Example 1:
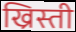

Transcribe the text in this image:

ख्रिस्ती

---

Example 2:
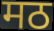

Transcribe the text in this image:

मठ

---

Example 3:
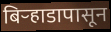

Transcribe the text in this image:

बिऱ्हाडापासून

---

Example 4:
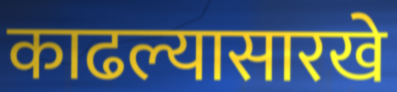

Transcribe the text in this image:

काढल्यासारखे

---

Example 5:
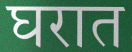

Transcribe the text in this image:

घरात